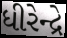
ધીરેન્દ્રે